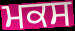
ਮਕਸ